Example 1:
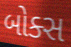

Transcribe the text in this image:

બોક્સ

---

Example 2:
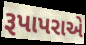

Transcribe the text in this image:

રૂપાપરાએ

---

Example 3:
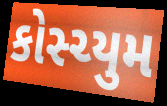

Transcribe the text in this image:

કોસ્ચ્યુમ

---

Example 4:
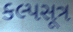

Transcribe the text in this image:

કલ્પસૂત્ર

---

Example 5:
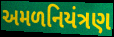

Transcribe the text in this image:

અમળનિયંત્રણ